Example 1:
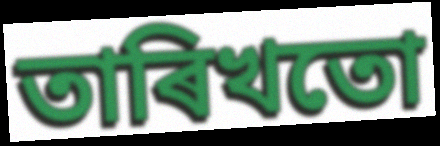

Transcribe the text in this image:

তাৰিখতো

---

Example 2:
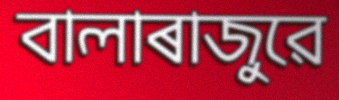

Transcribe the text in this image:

বালাৰাজুৱে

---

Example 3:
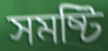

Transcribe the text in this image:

সমষ্টি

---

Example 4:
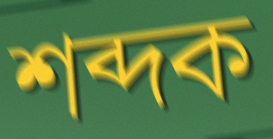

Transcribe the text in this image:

শব্দক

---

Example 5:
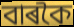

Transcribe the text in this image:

বাৰকৈ